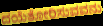
ದಯೆತೋರಿಸುವವನು